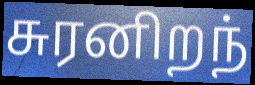
சுரனிறந்